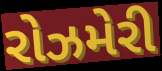
રોઝમેરી